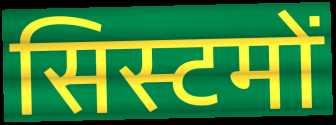
सिस्टमों